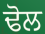
ਢੋਲ